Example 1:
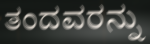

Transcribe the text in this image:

ತಂದವರನ್ನು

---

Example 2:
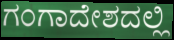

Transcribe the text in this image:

ಗಂಗಾದೇಶದಲ್ಲಿ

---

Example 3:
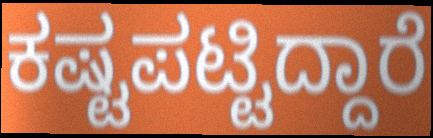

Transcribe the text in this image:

ಕಷ್ಟಪಟ್ಟಿದ್ದಾರೆ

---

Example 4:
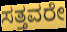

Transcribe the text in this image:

ಸತ್ತವರೇ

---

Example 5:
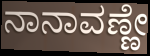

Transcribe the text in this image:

ನಾನಾವಣ್ಣೇ